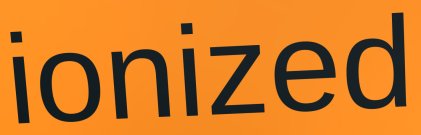
ionized